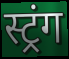
स्ट्रंग